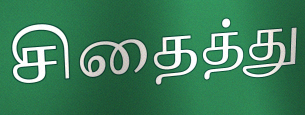
சிதைத்து